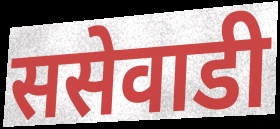
ससेवाडी